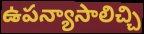
ఉపన్యాసాలిచ్చి